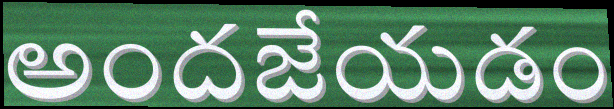
అందజేయడం